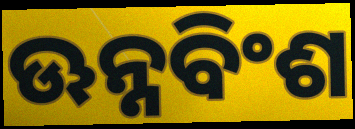
ଊନ୍ନବିଂଶ